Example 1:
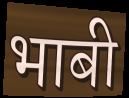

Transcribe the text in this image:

भाबी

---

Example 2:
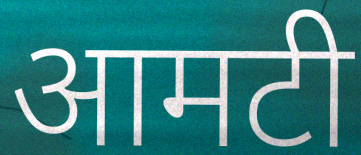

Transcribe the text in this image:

आमटी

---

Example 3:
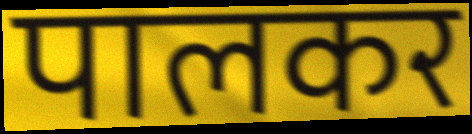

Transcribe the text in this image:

पालकर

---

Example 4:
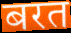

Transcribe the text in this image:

बरत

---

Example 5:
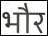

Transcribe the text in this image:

भौर